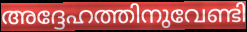
അദ്ദേഹത്തിനുവേണ്ടി